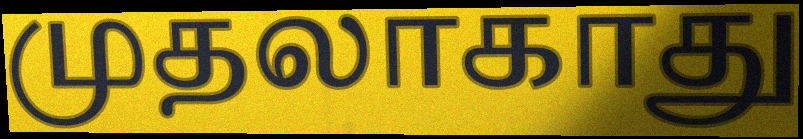
முதலாகாது